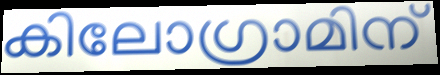
കിലോഗ്രാമിന്